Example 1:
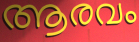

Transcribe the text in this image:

ആരവം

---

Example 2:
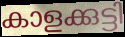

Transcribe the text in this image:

കാളക്കുട്ടി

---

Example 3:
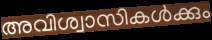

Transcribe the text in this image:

അവിശ്വാസികൾക്കും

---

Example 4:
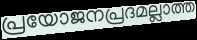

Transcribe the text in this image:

പ്രയോജനപ്രദമല്ലാത്ത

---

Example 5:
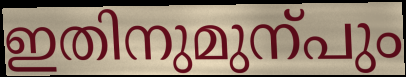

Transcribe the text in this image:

ഇതിനുമുന്പും